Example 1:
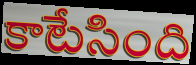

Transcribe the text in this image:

కాటేసింది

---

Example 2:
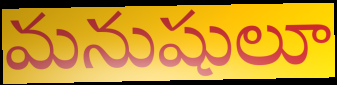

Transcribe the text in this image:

మనుషులూ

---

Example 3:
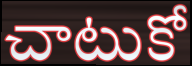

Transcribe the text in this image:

చాటుకో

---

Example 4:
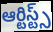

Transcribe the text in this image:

ఆర్టిస్ట్స్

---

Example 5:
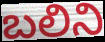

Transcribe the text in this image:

బలిని